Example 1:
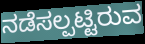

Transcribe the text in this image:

ನಡೆಸಲ್ಪಟ್ಟಿರುವ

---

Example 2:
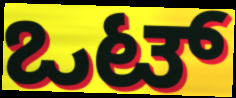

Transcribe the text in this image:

ಒಟ್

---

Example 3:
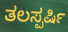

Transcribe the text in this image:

ತಲಸ್ಪರ್ಷಿ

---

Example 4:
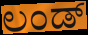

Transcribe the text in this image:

ಲಂಡ್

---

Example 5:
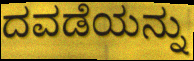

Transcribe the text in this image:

ದವಡೆಯನ್ನು